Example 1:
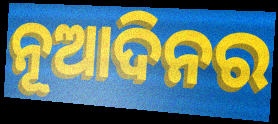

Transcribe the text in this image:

ନୂଆଦିନର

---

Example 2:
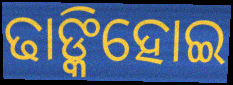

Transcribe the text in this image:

ଢାଙ୍କିହୋଇ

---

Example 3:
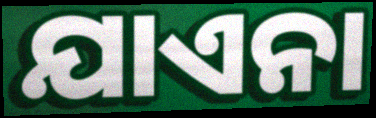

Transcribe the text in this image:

ଯାଏନା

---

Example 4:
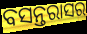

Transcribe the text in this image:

ବସନ୍ତରାସର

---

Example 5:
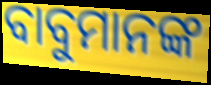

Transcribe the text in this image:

ବାବୁମାନଙ୍କ